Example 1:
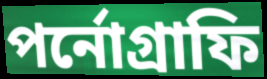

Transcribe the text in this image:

পর্নোগ্রাফি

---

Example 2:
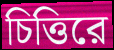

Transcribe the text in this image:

চিত্তিরে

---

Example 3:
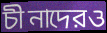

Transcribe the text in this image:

চীনাদেরও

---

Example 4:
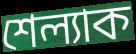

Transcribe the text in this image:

শেল্যাক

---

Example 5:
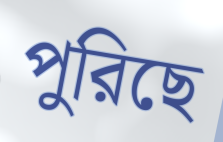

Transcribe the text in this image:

পুরিছে